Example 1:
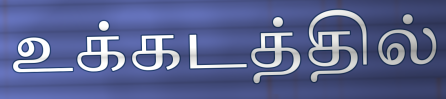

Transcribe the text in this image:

உக்கடத்தில்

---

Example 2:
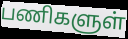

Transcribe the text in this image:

பணிகளுள்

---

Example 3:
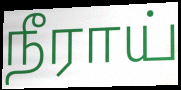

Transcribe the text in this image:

நீராய்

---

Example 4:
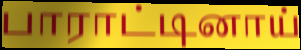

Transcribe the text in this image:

பாராட்டினாய்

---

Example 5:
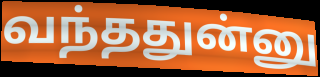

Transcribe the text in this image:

வந்ததுன்னு